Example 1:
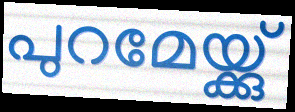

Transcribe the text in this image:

പുറമേയ്ക്കു്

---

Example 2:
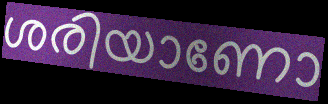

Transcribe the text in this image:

ശരിയാണോ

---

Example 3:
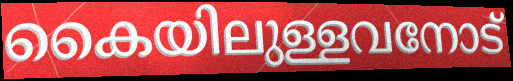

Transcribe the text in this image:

കൈയിലുള്ളവനോട്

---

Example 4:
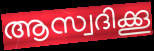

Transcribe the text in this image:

ആസ്വദിക്കൂ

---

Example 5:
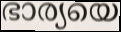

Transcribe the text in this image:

ഭാര്യയെ